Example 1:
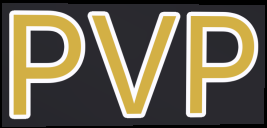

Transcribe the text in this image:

PVP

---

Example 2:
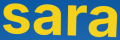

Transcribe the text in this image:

sara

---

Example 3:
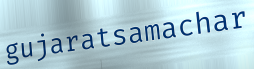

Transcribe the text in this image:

gujaratsamachar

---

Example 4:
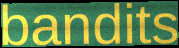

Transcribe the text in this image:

bandits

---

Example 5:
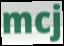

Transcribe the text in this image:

mcj